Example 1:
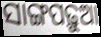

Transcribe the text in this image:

ସାଙ୍ଗପଢ଼ୁଆ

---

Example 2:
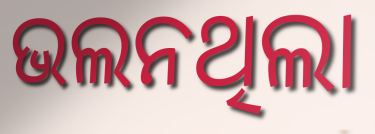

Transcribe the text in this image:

ଭଲନଥିଲା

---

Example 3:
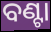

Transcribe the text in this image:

ବଣ୍ଟା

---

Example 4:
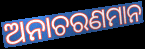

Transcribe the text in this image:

ଅନାଚରଣମାନ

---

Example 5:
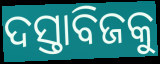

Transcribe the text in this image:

ଦସ୍ତାବିଜକୁ